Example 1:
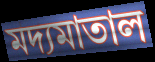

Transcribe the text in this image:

মদ্যমাতাল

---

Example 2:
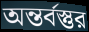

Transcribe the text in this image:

অন্তর্বস্তুর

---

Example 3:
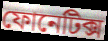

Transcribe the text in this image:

ফোনেটিক্স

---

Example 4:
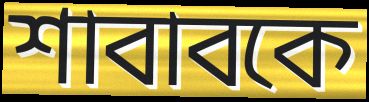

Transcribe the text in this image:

শাবাবকে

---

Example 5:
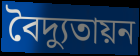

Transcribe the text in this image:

বৈদ্যুতায়ন